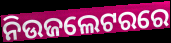
ନିଉଜଲେଟରରେ